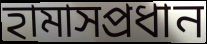
হামাসপ্রধান